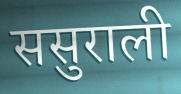
ससुराली